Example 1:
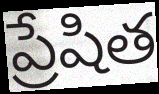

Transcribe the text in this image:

ప్రేషిత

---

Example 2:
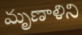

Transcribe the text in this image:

మృణాళిని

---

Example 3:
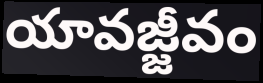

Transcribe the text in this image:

యావజ్జీవం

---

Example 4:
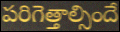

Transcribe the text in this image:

పరిగెత్తాల్సిందే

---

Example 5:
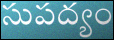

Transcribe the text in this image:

సుపద్యం